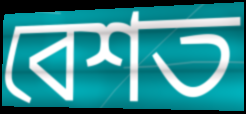
বেশত